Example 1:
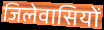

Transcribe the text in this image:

जिलेवासियों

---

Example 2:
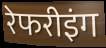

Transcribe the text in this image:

रेफरीइंग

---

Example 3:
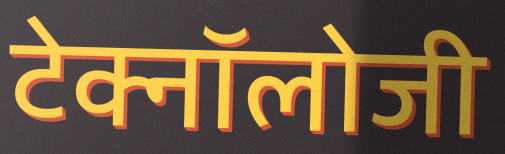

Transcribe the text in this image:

टेक्नॉलोजी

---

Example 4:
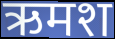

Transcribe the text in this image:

ऋमश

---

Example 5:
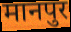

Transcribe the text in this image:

मानपुर